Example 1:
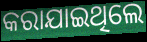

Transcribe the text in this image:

କରାଯାଇଥିଲେ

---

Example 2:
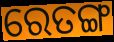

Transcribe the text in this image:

ରେତଙ୍ଗ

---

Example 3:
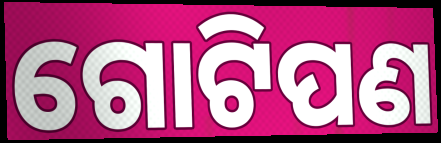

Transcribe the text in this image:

ଗୋଟିପଣ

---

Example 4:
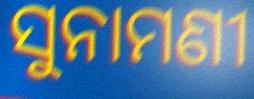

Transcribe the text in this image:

ସୁନାମଣୀ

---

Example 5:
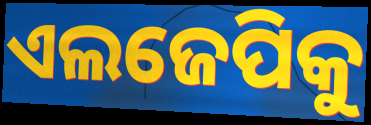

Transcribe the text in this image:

ଏଲଜେପିକୁ